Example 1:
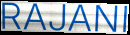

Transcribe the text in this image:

RAJANI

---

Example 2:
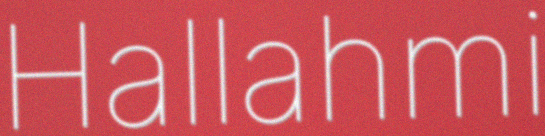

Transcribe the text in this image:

Hallahmi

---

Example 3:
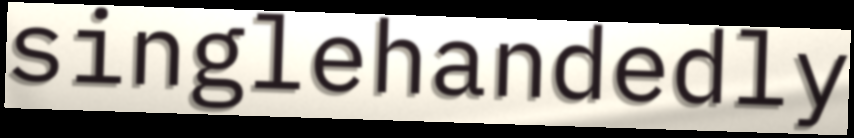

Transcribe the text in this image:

singlehandedly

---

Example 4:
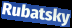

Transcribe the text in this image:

Rubatsky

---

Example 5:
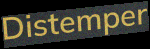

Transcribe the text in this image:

Distemper